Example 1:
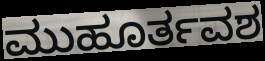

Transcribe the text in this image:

ಮುಹೂರ್ತವಶ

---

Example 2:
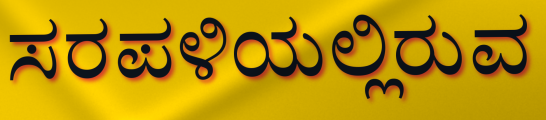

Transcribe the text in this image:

ಸರಪಳಿಯಲ್ಲಿರುವ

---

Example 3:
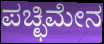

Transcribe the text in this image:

ಪಚ್ಛಿಮೇನ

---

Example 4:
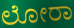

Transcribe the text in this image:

ಲೋರಾ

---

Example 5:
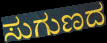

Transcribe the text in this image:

ಸುಗುಣದ